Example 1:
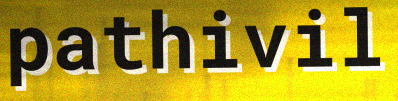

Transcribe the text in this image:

pathivil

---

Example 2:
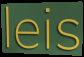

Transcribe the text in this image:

leis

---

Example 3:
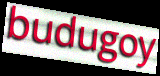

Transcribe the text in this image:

budugoy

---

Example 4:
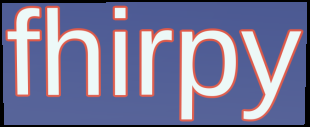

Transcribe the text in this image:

fhirpy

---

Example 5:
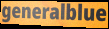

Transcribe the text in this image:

generalblue